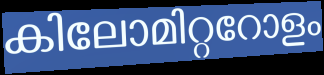
കിലോമിറ്ററോളം